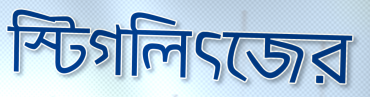
স্টিগলিৎজের